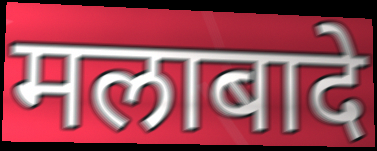
मलाबादे